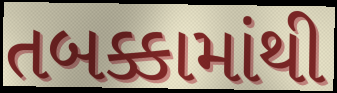
તબક્કામાંથી